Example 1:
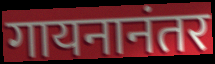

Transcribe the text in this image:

गायनानंतर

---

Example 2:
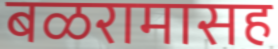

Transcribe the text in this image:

बळरामासह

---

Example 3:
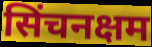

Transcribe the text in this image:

सिंचनक्षम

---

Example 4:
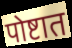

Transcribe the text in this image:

पोष्टात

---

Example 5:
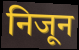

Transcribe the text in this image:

निजून